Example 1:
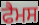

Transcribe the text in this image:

ਫੈਮਸ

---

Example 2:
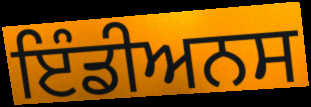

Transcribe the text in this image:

ਇੰਡੀਅਨਸ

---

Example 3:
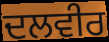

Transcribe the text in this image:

ਦਲਵੀਰ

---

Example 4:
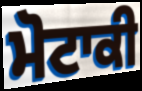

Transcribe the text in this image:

ਮੋਟਾਕੀ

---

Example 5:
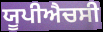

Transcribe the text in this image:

ਯੂਪੀਐਚਸੀ